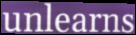
unlearns